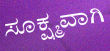
ಸೂಕ್ಷ್ಮವಾಗಿ